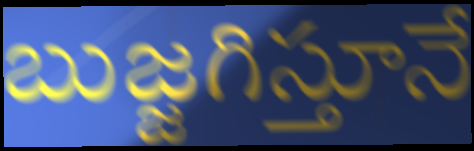
బుజ్జగిస్తూనే